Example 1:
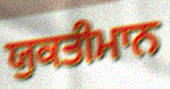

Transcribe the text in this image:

ਯੁਕਤੀਮਾਨ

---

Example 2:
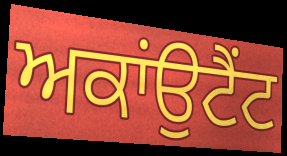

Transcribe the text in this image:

ਅਕਾਂਉਟੈਂਟ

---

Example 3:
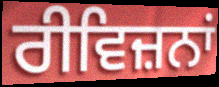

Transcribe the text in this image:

ਰੀਵਿਜ਼ਨਾਂ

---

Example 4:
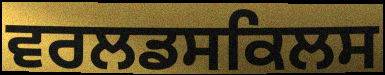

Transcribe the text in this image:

ਵਰਲਡਸਕਿਲਸ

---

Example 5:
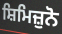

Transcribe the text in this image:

ਸ਼ਿਮਿਜ਼ੁਨੋ